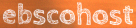
ebscohost